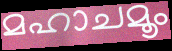
മഹാചമൂം